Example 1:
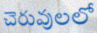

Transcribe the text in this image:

చెరువులలో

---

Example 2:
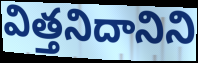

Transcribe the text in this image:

విత్తనిదానిని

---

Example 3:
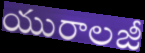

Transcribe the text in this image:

యురాలజీ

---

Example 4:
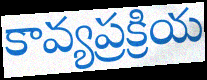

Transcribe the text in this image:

కావ్యప్రక్రియ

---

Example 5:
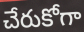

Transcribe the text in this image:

చేరుకోగా